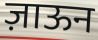
ज़ाऊन